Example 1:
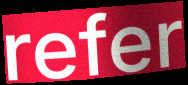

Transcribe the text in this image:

refer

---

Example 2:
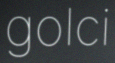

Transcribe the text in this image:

golci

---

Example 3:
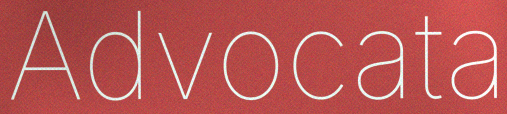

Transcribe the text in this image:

Advocata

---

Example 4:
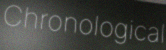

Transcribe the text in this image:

Chronological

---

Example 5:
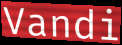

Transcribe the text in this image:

Vandi